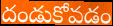
దండుకోవడం